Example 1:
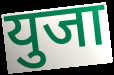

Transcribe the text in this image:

युजा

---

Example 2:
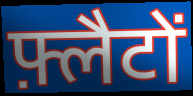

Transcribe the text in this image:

फ़्लैटों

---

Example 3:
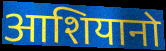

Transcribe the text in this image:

आशियानो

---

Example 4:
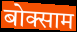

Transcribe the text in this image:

बोक्साम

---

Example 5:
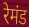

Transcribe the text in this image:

रेमंड